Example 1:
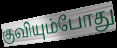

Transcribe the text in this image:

குவியும்போது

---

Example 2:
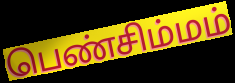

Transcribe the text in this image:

பெண்சிம்மம்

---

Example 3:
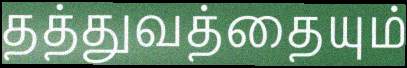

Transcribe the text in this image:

தத்துவத்தையும்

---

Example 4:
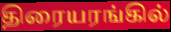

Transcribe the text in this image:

திரையரங்கில்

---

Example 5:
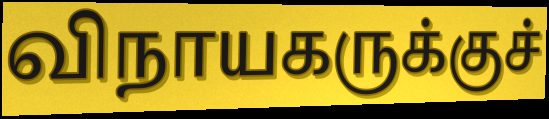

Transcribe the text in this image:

விநாயகருக்குச்